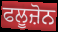
ਫਲੂਜ਼ੋਨ